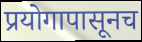
प्रयोगापासूनच